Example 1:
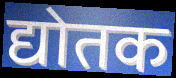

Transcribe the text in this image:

द्योतक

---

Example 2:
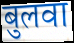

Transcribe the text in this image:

बुलवा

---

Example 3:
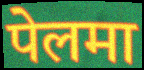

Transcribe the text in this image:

पेलमा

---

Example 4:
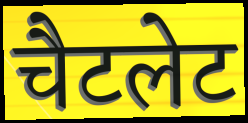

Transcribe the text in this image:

चैटलेट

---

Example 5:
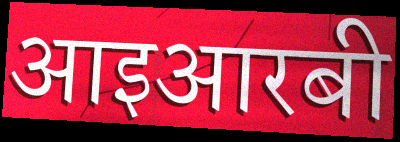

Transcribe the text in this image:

आइआरबी